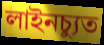
লাইনচ্যুত